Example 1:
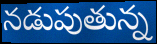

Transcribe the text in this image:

నడుపుతున్న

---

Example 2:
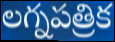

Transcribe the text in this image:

లగ్నపత్రిక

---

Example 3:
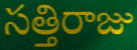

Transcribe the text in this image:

సత్తిరాజు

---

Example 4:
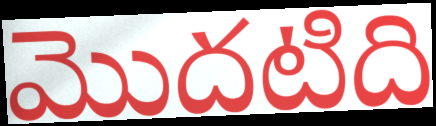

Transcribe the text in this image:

మొదటిది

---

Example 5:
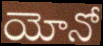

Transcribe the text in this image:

యోనో